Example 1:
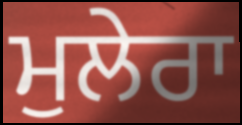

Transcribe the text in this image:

ਮੁਲੇਰਾ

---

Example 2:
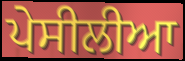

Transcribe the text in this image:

ਪੇਸੀਲੀਆ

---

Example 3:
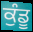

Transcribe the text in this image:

ਕੁੰਡੂ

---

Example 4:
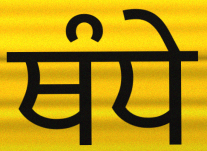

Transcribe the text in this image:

ਥੰਧੇ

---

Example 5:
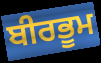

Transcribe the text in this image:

ਬੀਰਭੂਮ